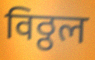
विठ्ठल